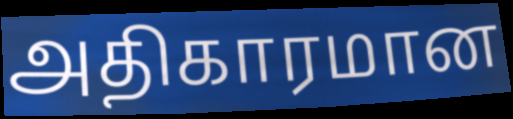
அதிகாரமான